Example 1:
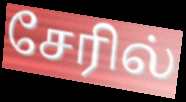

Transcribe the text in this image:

சேரில்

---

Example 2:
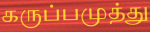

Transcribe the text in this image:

கருப்பமுத்து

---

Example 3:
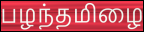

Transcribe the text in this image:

பழந்தமிழை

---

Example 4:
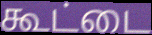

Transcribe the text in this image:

கூட்டை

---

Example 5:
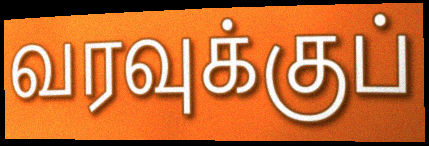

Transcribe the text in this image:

வரவுக்குப்